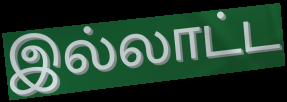
இல்லாட்ட